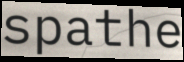
spathe